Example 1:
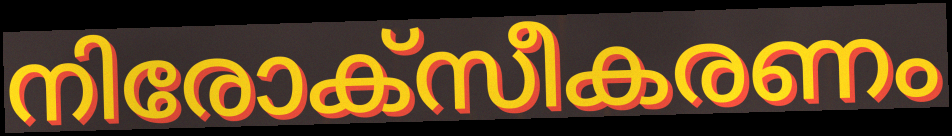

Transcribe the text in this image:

നിരോക്സീകരണം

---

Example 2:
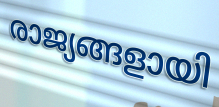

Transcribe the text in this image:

രാജ്യങ്ങളായി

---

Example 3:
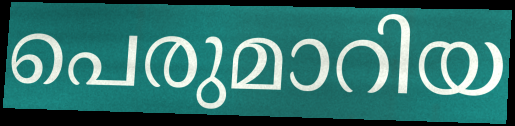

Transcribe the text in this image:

പെരുമാറിയ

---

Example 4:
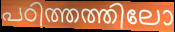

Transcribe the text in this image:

പഠിത്തത്തിലോ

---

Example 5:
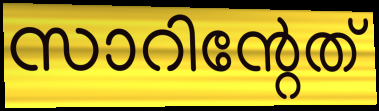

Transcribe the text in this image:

സാറിന്റേത്